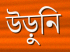
উড়ুনি